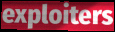
exploiters